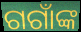
ଗଗାଁଙ୍କ